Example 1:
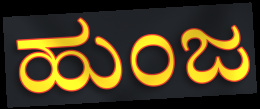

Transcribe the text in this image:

ಹುಂಜ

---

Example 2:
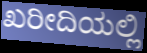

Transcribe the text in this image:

ಖರೀದಿಯಲ್ಲಿ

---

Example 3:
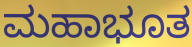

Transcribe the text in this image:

ಮಹಾಭೂತ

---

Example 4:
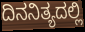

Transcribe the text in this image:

ದಿನನಿತ್ಯದಲ್ಲಿ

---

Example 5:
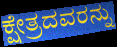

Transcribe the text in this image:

ಕ್ಷೇತ್ರದವರನ್ನು